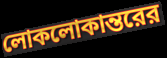
লোকলোকান্তরের